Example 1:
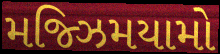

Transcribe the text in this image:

મજ્ઝિમયામો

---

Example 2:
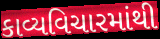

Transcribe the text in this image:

કાવ્યવિચારમાંથી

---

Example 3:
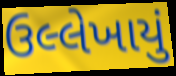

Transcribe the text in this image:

ઉલ્લેખાયું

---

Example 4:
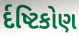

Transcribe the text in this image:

ર્દષ્ટિકોણ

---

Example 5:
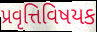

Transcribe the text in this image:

પ્રવૃત્તિવિષયક